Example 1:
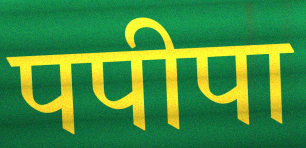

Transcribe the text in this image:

पपीपा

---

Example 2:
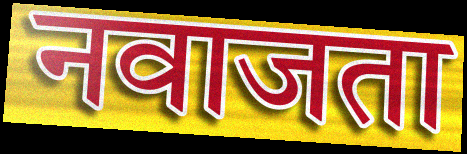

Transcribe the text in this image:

नवाजता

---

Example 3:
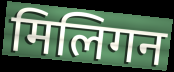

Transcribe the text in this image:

मिलिगन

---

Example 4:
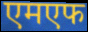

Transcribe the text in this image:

एमएफ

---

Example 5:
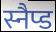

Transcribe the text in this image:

स्नैप्ड